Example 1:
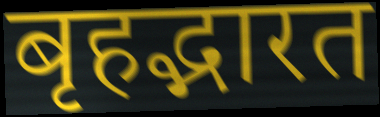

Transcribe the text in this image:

बृहद्भारत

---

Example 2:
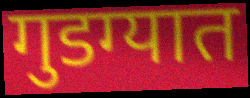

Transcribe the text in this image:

गुडग्यात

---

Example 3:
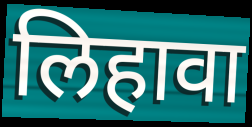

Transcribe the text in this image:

लिहावा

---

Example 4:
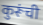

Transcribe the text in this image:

कुरूंची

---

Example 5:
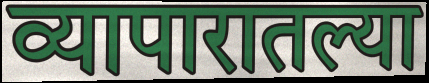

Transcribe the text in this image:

व्यापारातल्या